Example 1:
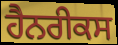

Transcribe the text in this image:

ਹੈਨਰੀਕਸ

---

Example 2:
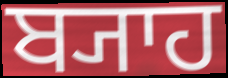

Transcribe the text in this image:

ਬ੍ਯਾਹ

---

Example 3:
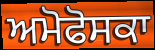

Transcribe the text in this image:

ਅਮੋਫੋਸਕਾ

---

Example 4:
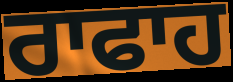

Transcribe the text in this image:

ਰਾਫਾਹ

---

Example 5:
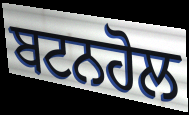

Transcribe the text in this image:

ਬਟਨਹੋਲ